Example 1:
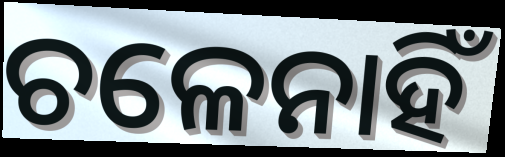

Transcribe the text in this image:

ଚଳେନାହିଁ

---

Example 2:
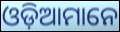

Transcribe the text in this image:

ଓଡ଼ିଆମାନେ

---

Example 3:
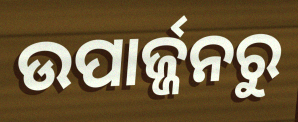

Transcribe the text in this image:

ଉପାର୍ଜ୍ଜନରୁ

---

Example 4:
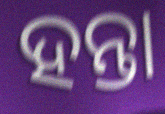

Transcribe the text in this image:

ହନ୍ତା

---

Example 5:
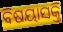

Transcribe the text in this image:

ବିଷୟାସକ୍ତି